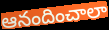
ఆనందించాలా